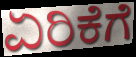
ಏರಿಕೆಗೆ